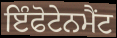
ਇੰਫੋਟੇਨਮੈਂਟ